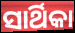
ସାର୍ଥିକା